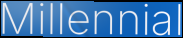
Millennial